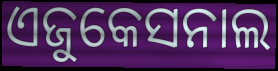
ଏଜୁକେସନାଲ